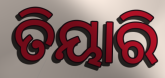
ତିୟାରି